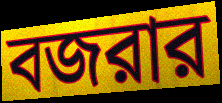
বজরার